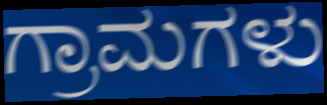
ಗ್ರಾಮಗಳು